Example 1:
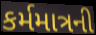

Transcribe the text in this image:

કર્મમાત્રની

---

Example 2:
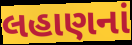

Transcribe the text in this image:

લહાણનાં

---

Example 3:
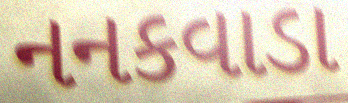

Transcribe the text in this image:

નનકવાડા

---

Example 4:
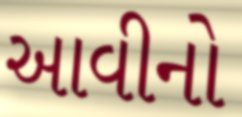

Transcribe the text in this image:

આવીનો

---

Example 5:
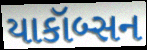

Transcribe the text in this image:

યાકૉબ્સન